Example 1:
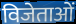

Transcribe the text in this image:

विजेताओं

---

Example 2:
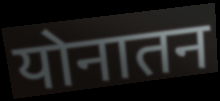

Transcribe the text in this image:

योनातन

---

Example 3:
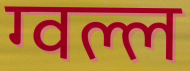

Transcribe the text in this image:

ग्वल्ल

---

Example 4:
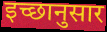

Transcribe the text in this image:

इच्छानुसार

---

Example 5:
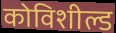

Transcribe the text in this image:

कोविशील्ड